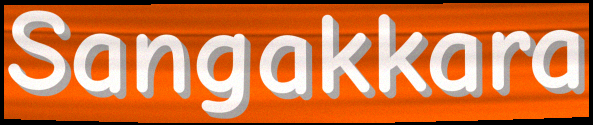
Sangakkara